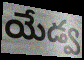
యేడ్వ